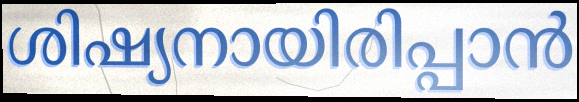
ശിഷ്യനായിരിപ്പാൻ